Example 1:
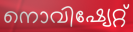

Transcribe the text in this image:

നൊവിഷ്യേറ്റ്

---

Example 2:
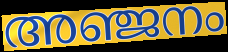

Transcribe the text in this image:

അഞ്ജനം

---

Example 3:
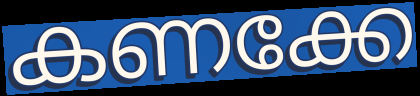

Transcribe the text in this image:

കണക്കേ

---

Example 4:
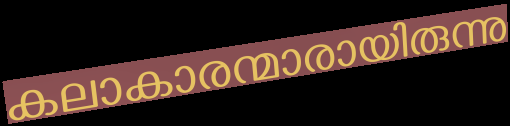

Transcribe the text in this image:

കലാകാരന്മാരായിരുന്നു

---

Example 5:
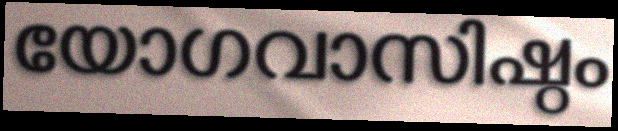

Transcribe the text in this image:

യോഗവാസിഷ്ഠം